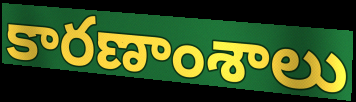
కారణాంశాలు